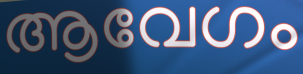
ആവേഗം